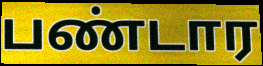
பண்டார